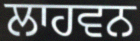
ਲਾਹਵਨ